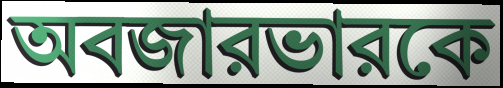
অবজারভারকে